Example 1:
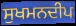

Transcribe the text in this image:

ਸੁਖਮਨਦੀਪ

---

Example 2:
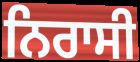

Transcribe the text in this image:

ਨਿਰਾਸੀ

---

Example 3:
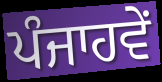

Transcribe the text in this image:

ਪੰਜਾਹਵੇਂ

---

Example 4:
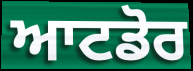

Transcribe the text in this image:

ਆਟਡੋਰ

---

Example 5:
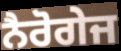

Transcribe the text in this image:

ਨੈਰੋਗੇਜ